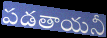
పడతాయనీ